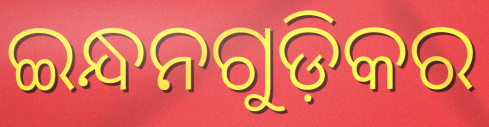
ଇନ୍ଧନଗୁଡ଼ିକର